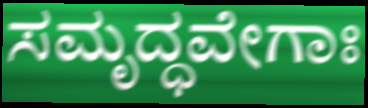
ಸಮೃದ್ಧವೇಗಾಃ